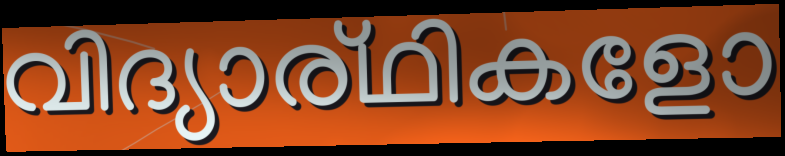
വിദ്യാര്ഥികളോ